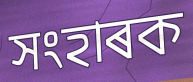
সংহাৰক